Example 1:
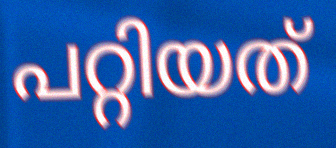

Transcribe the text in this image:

പറ്റിയത്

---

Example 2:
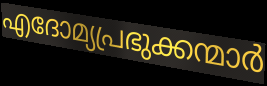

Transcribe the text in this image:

എദോമ്യപ്രഭുക്കന്മാർ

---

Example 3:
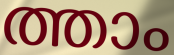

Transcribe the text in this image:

ത്താം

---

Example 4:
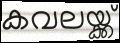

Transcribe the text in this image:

കവലയ്ക്ക്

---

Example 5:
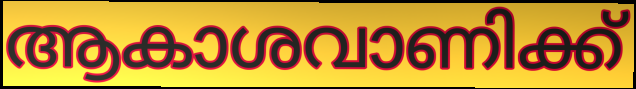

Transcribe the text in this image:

ആകാശവാണിക്ക്